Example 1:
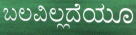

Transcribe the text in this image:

ಬಲವಿಲ್ಲದೆಯೂ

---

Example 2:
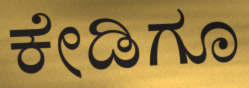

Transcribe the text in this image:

ಕೇಡಿಗೂ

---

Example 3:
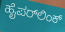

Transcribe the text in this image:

ಹೈಪರ್‌ಲಿಂಕ್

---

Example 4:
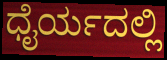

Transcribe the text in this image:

ಧೈರ್ಯದಲ್ಲಿ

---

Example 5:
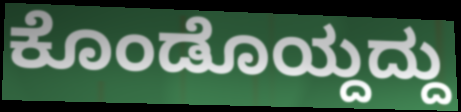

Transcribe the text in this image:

ಕೊಂಡೊಯ್ದದ್ದು